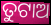
ତୁଟାଅ